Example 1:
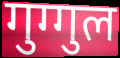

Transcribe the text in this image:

गुग्गुल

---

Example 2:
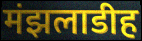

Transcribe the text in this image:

मंझलाडीह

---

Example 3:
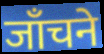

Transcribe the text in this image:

जाँचने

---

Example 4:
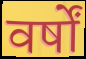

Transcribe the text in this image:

वर्षों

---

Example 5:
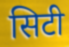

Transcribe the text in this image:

सिटी